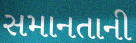
સમાનતાની